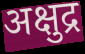
अक्षुद्र